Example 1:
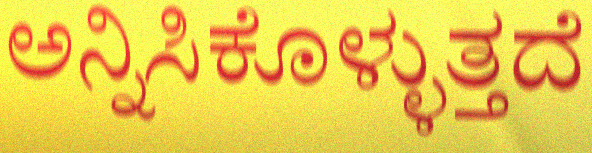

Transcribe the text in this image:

ಅನ್ನಿಸಿಕೊಳ್ಳುತ್ತದೆ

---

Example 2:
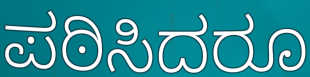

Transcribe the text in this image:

ಪಠಿಸಿದರೂ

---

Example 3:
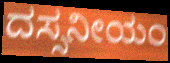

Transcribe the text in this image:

ದಸ್ಸನೀಯಂ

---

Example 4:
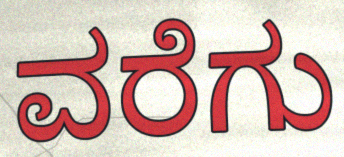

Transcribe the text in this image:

ವರೆಗು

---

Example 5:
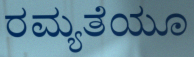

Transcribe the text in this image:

ರಮ್ಯತೆಯೂ